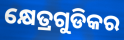
କ୍ଷେତ୍ରଗୁଡିକର